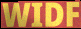
WIDF